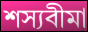
শস্যবীমা